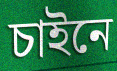
চাইনে